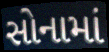
સોનામાં